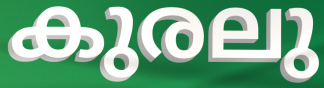
കുരലു